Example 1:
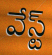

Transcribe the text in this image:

వేస్ట్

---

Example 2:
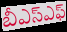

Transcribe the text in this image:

బీఎస్ఎఫ్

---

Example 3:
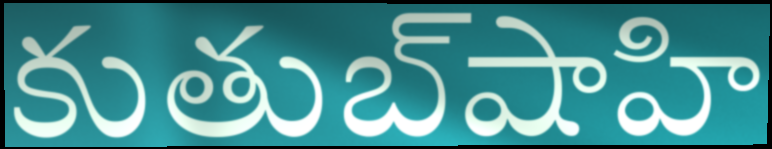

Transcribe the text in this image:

కుతుబ్‌షాహి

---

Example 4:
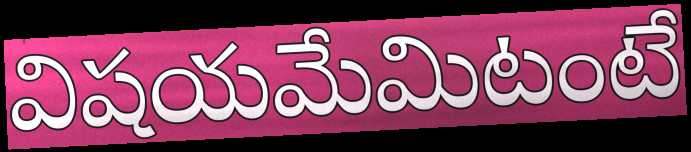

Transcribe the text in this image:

విషయమేమిటంటే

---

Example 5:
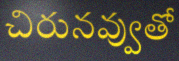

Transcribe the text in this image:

చిరునవ్వుతో